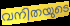
വനിതയുടെ